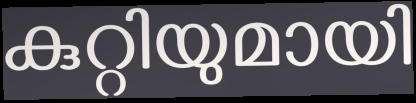
കുറ്റിയുമായി